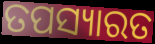
ତପସ୍ୟାରତ